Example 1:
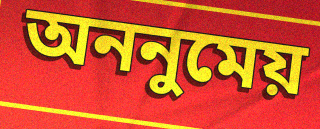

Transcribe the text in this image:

অননুমেয়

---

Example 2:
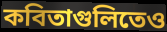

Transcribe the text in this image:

কবিতাগুলিতেও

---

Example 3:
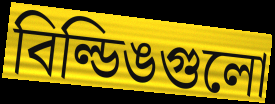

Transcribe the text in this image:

বিল্ডিঙগুলো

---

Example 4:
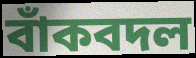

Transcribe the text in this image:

বাঁকবদল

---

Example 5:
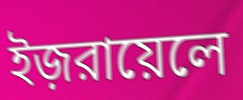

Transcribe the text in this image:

ইজ়রায়েলে